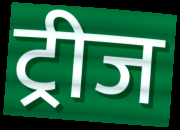
ट्रीज